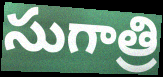
సుగాత్రి